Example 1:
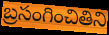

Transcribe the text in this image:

బ్రసంగించితిని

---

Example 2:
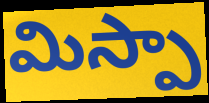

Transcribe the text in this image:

మిస్పా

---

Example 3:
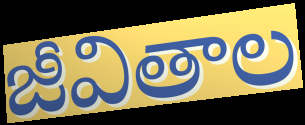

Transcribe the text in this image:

జీవితాల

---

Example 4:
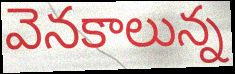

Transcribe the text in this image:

వెనకాలున్న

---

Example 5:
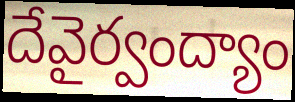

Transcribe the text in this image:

దేవైర్వంద్యాం